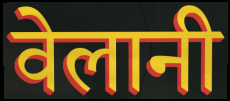
वेलानी